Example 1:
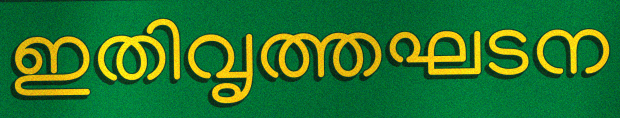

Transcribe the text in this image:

ഇതിവൃത്തഘടന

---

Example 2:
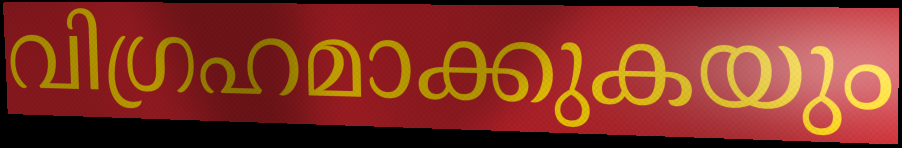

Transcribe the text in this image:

വിഗ്രഹമാക്കുകയും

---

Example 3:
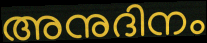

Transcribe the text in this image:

അനുദിനം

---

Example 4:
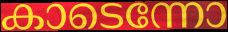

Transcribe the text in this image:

കാടെന്നോ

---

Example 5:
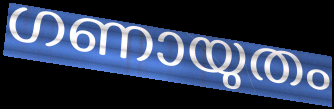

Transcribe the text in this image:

ഗണായുതം